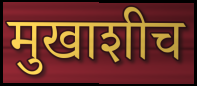
मुखाशीच